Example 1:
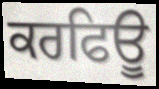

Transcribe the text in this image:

ਕਰਫਿਊ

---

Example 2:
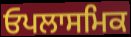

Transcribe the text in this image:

ਓਪਲਾਸਮਿਕ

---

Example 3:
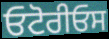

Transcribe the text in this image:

ਓਟੋਰੀਓਸ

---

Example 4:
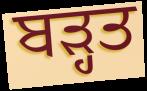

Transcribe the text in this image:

ਬੜ੍ਹਤ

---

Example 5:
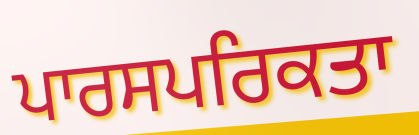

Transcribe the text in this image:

ਪਾਰਸਪਰਿਕਤਾ